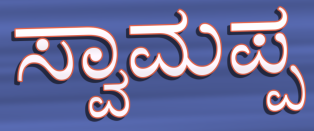
ಸ್ವಾಮಪ್ಪ